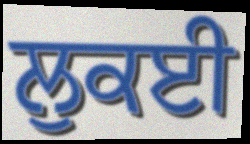
ਲੁਕਈ